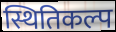
स्थितिकल्प